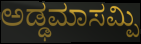
ಅಡ್ಢಮಾಸಮ್ಪಿ